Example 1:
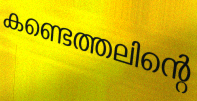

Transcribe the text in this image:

കണ്ടെത്തലിന്റെ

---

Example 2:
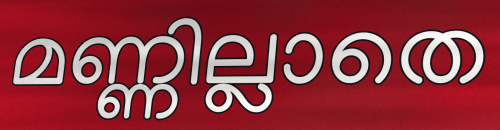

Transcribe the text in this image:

മണ്ണില്ലാതെ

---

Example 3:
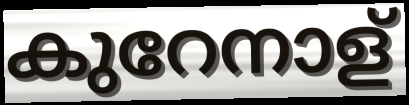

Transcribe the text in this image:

കുറേനാള്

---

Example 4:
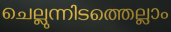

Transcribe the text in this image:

ചെല്ലുന്നിടത്തെല്ലാം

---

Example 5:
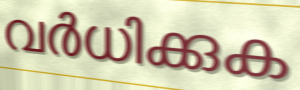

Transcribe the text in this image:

വർധിക്കുക